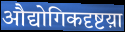
औद्योगिकदृष्टय़ा